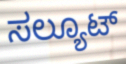
ಸಲ್ಯೂಟ್